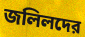
জলিলদের